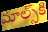
మాల్స్‌కి